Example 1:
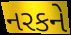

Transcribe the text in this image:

નરકને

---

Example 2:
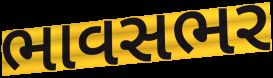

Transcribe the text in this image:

ભાવસભર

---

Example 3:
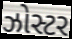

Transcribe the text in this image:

ઝોસ્ટર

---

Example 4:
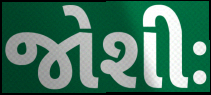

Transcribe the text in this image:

જોશીઃ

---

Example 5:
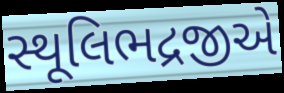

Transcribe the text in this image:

સ્થૂલિભદ્રજીએ